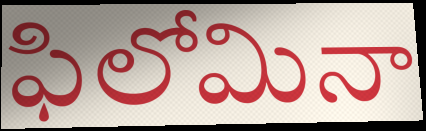
ఫిలోమినా